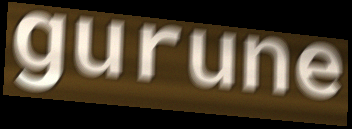
gurune